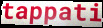
tappati